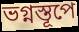
ভগ্নস্তূপে